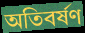
অতিবর্ষণ